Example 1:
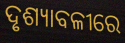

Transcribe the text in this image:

ଦୃଶ୍ୟାବଳୀରେ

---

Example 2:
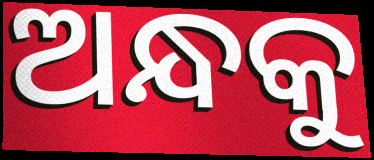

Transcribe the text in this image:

ଅନ୍ଧକୁ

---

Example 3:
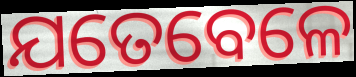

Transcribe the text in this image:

ଯତେବେଳେ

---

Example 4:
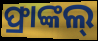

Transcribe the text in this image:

ଫ୍ରାଙ୍କଲ୍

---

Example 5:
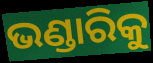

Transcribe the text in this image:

ଭଣ୍ଡାରିକୁ